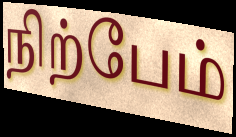
நிற்பேம்